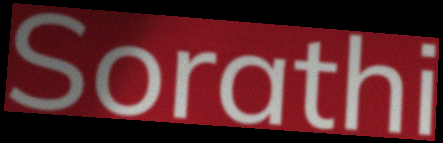
Sorathi